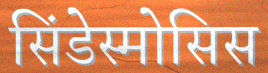
सिंडेस्मोसिस